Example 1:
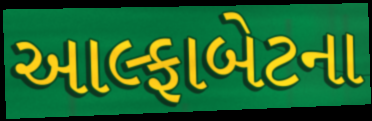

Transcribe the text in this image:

આલ્ફાબેટના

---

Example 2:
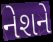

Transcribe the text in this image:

નેશને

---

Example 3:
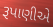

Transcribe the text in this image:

રૂપાણીએ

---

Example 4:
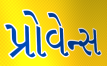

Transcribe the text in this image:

પ્રોવેન્સ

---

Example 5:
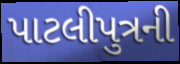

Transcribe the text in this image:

પાટલીપુત્રની